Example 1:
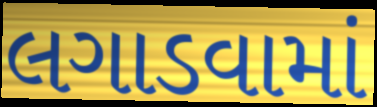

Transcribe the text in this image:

લગાડવામાં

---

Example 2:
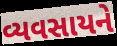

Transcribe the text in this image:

વ્યવસાયને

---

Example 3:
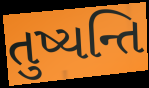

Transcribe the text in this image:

તુષ્યન્તિ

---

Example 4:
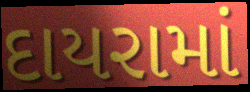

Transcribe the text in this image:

દાયરામાં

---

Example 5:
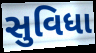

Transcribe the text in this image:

સુવિધા